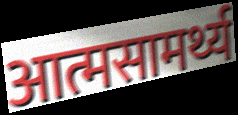
आत्मसामर्थ्य